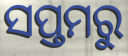
ସପ୍ତମରୁ